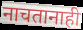
नाचतानाही